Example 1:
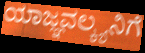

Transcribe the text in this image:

ಯಾಜ್ಞವಲ್ಕ್ಯನಿಗೆ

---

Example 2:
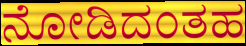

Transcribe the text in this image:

ನೋಡಿದಂತಹ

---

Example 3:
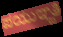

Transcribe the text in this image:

ಪಯುಞ್ಜತಿ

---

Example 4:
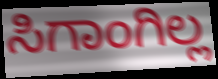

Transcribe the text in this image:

ಸಿಗಾಂಗಿಲ್ಲ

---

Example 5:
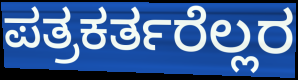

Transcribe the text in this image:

ಪತ್ರಕರ್ತರೆಲ್ಲರ